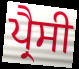
ਪ੍ਰੈਸੀ